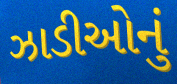
ઝાડીઓનું